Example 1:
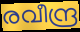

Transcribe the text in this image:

രവീന്ദ്ര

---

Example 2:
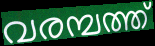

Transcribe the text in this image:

വരമ്പത്ത്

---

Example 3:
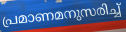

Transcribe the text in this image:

പ്രമാണമനുസരിച്ച്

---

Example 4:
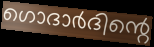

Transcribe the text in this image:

ഗൊദാർദിന്റെ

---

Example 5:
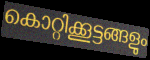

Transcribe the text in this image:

കൊറ്റിക്കൂട്ടങ്ങളും